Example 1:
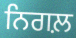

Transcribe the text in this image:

ਨਿਗਲ਼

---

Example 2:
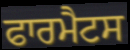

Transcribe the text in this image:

ਫਾਰਮੈਟਸ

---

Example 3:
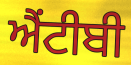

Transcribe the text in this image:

ਐਂਟੀਬੀ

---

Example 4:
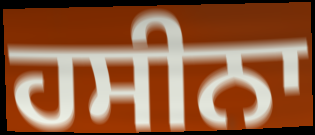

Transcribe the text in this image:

ਹਸੀਨਾ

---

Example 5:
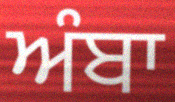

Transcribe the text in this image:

ਅੰਬਾ